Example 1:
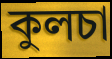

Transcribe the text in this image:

কুলচা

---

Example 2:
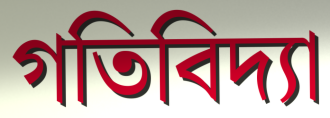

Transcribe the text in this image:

গতিবিদ্যা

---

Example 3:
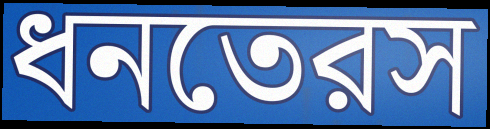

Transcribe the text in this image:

ধনতেরস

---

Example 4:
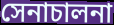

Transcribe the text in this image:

সেনাচালনা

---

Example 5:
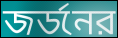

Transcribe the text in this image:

জর্ডনের